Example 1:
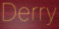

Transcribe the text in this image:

Derry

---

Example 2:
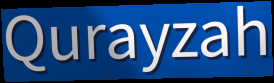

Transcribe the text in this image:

Qurayzah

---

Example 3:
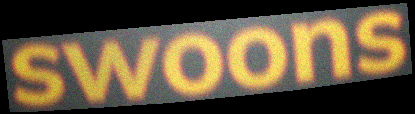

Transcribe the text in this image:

swoons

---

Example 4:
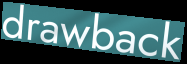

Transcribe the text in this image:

drawback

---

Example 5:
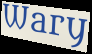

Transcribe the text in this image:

Wary